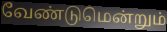
வேண்டுமென்றும்